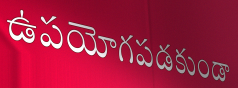
ఉపయోగపడకుండా